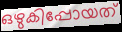
ഒഴുകിപ്പോയത്